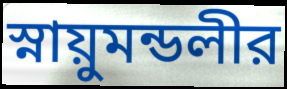
স্নায়ুমন্ডলীর